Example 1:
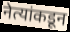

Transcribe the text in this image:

नेत्यांकडून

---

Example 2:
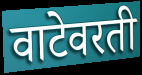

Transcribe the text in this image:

वाटेवरती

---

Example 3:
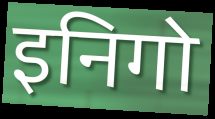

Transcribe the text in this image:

इनिगो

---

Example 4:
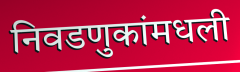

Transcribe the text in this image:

निवडणुकांमधली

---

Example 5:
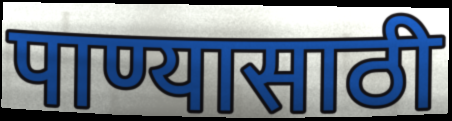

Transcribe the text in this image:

पाण्यासाठी